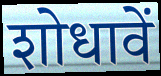
शोधावें